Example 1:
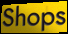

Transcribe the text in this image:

Shops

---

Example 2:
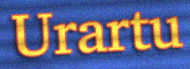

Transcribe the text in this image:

Urartu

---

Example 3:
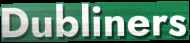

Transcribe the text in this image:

Dubliners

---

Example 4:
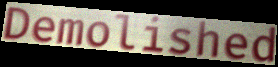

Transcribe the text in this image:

Demolished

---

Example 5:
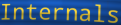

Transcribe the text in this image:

Internals